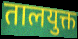
तालयुक्त